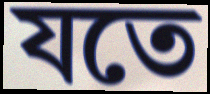
যতে